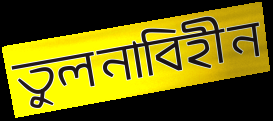
তুলনাবিহীন